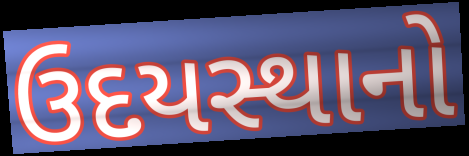
ઉદયસ્થાનો